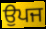
ਉਪਜ